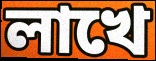
লাখে